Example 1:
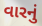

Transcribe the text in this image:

વારનું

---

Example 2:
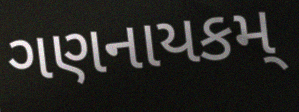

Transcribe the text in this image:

ગણનાયકમ્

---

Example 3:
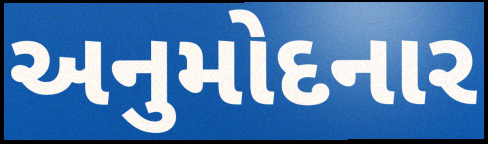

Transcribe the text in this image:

અનુમોદનાર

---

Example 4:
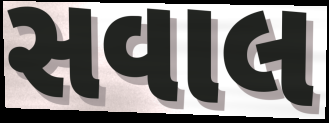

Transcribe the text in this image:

સવાલ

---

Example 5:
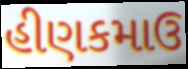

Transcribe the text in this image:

હીણકમાઉ